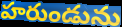
హరుండును